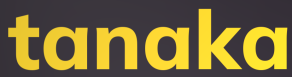
tanaka